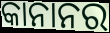
କାନାନର